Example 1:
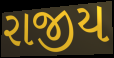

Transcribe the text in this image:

રાજીય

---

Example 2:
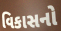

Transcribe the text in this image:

વિકાસનો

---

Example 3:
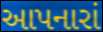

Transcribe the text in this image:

આપનારાં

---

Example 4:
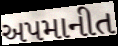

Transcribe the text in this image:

અપમાનીત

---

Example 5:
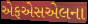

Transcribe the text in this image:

એફએસએલના